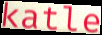
katle